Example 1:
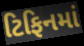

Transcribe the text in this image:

ટિફિનમાં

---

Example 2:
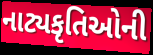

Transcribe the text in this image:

નાટ્યકૃતિઓની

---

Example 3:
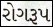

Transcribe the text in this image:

રોગરૂપ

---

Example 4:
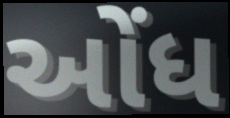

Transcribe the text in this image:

ઓંધ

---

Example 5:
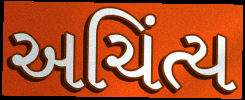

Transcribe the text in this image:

અચિંત્ય